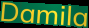
Damila